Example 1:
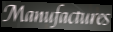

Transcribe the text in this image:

Manufactures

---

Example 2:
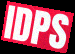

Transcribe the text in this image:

IDPS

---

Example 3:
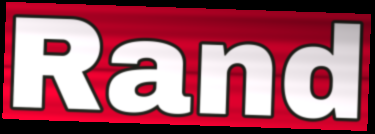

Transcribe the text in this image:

Rand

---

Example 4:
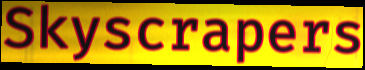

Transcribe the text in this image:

Skyscrapers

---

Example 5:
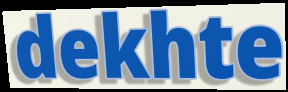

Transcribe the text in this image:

dekhte